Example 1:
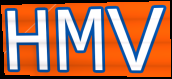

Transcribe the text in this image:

HMV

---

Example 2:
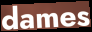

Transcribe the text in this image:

dames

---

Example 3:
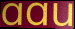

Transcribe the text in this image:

aau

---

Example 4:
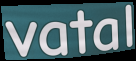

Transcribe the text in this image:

vatal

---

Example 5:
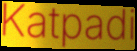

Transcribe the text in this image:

Katpadi